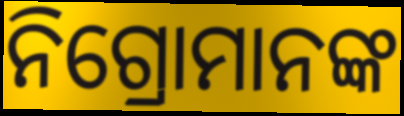
ନିଗ୍ରୋମାନଙ୍କ